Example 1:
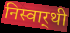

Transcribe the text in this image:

निस्वार्थी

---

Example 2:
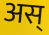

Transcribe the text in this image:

अस्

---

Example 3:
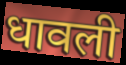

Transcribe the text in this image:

धावली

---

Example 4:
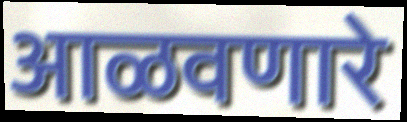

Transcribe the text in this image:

आळवणारे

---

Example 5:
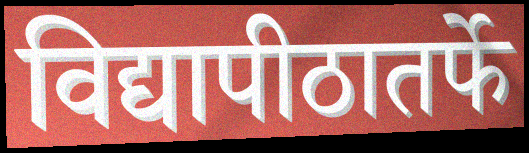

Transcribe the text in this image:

विद्यापीठातर्फे